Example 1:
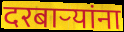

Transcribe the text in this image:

दरबाऱ्यांना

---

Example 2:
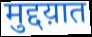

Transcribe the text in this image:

मुद्दय़ात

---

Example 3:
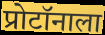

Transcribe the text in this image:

प्रोटॉनाला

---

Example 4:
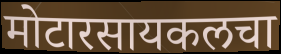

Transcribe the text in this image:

मोटारसायकलचा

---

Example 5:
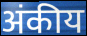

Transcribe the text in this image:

अंकीय